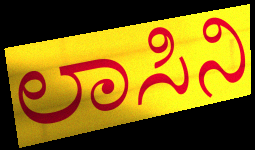
ಲಾಸಿನಿ